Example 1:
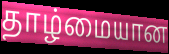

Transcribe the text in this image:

தாழ்மையான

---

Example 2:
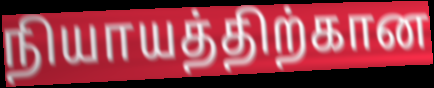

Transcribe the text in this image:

நியாயத்திற்கான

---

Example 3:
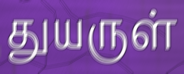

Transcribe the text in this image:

துயருள்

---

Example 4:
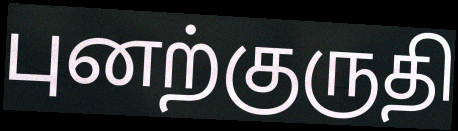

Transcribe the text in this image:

புனற்குருதி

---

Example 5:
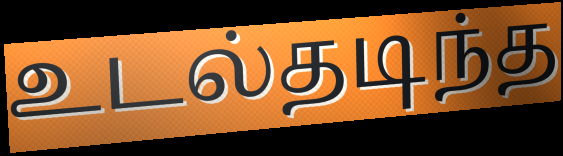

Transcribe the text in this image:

உடல்தடிந்த